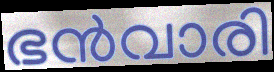
ഭൻവാരി